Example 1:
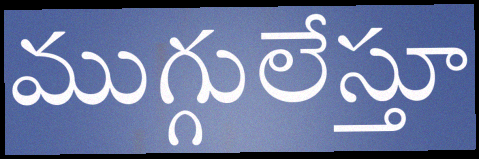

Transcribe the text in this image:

ముగ్గులేస్తూ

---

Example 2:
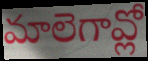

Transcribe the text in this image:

మాలెగావ్లో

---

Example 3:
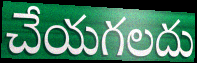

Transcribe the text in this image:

చేయగలదు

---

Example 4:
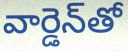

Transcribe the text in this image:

వార్డెన్‌తో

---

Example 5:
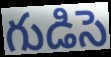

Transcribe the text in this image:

గుడిసె